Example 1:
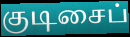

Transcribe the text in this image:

குடிசைப்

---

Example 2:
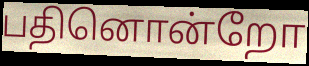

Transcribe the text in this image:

பதினொன்றோ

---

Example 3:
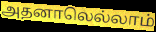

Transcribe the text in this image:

அதனாலெல்லாம்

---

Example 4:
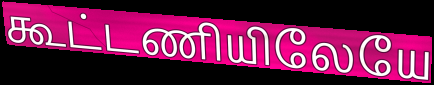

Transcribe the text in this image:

கூட்டணியிலேயே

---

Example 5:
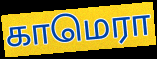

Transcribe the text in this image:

காமெரா